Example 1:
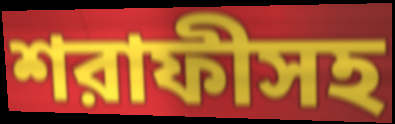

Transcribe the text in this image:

শরাফীসহ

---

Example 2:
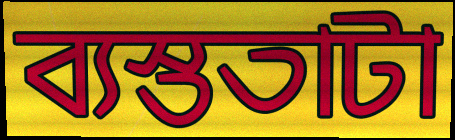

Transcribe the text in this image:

ব্যস্ততাটা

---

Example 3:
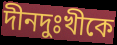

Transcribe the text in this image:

দীনদুঃখীকে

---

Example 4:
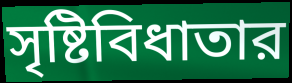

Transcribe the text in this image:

সৃষ্টিবিধাতার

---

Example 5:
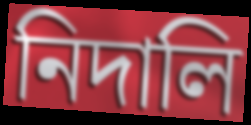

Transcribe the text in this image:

নিদালি